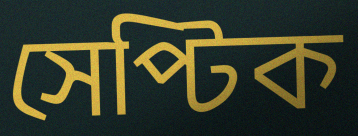
সেপ্টিক